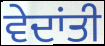
ਵੇਦਾਂਤੀ